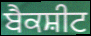
ਬੈਕਸ਼ੀਟ